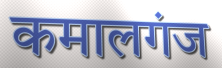
कमालगंज